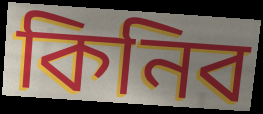
কিনিব